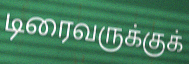
டிரைவருக்குக்